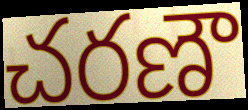
చరణౌ